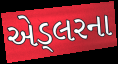
એડ્લરના